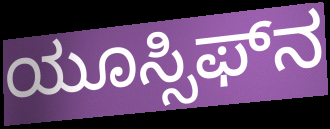
ಯೂಸ್ಸಿಫ್‌ನ